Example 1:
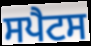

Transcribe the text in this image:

ਸਪੈਟਸ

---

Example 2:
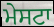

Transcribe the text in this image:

ਮੇਸਟਾ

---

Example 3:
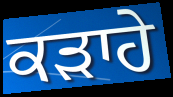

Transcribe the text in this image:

ਕੜਾਹੇ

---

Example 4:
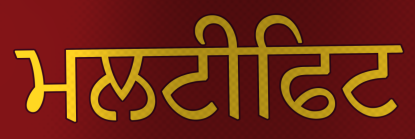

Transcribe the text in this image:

ਮਲਟੀਫਿਟ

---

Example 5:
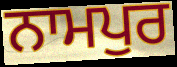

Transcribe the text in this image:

ਨਾਮਪੁਰ